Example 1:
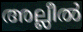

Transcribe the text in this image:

അല്ലീൽ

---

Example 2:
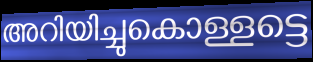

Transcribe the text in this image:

അറിയിച്ചുകൊള്ളട്ടെ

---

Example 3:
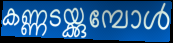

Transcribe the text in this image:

കണ്ണടയ്ക്കുമ്പോൾ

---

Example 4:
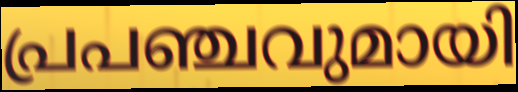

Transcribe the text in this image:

പ്രപഞ്ചവുമായി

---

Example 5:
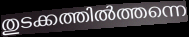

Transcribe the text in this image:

തുടക്കത്തിൽത്തന്നെ